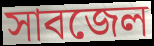
সাবজেল